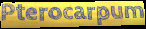
Pterocarpum